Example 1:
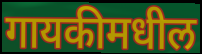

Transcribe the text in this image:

गायकीमधील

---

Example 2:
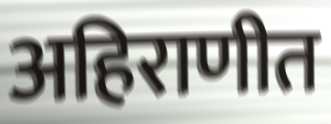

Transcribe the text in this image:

अहिराणीत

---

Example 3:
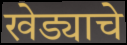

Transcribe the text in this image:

खेड्याचे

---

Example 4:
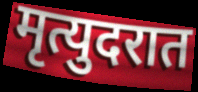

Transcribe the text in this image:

मृत्युदरात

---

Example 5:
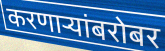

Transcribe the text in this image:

करणार्‍यांबरोबर